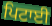
ਪਿਟਾਈ